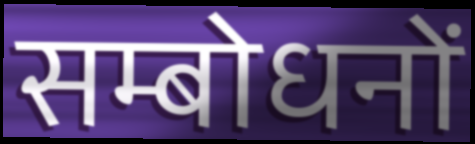
सम्बोधनों